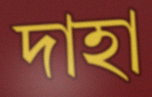
দাহা